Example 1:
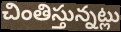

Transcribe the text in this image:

చింతిస్తున్నట్లు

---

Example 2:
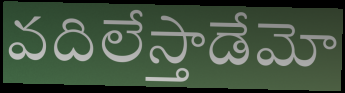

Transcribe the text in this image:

వదిలేస్తాడేమో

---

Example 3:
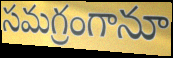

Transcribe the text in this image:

సమగ్రంగానూ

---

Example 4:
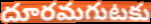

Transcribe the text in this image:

దూరమగుటకు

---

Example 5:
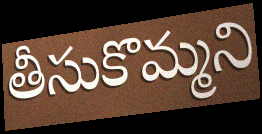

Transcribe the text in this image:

తీసుకొమ్మని